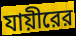
যায়ীরের